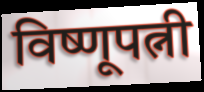
विष्णूपत्नी